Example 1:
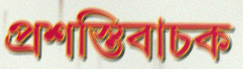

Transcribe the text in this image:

প্রশস্তিবাচক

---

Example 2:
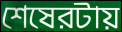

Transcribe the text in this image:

শেষেরটায়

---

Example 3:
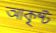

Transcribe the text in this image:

আকৃষ্ট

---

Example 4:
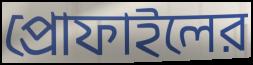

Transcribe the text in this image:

প্রোফাইলের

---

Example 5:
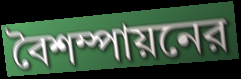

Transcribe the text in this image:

বৈশম্পায়নের